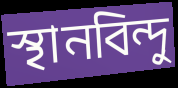
স্থানবিন্দু